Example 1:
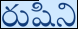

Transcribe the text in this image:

రుషిని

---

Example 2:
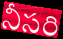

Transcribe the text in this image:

నీసరి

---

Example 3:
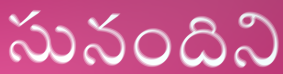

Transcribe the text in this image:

సునందిని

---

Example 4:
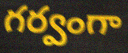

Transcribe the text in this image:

గర్వంగా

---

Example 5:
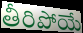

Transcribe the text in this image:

తీరిపోయే